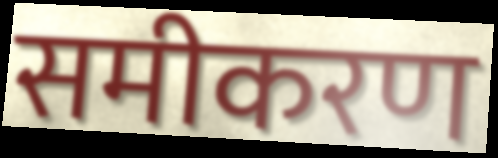
समीकरण